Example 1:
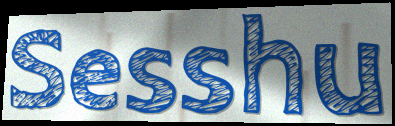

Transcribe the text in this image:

Sesshu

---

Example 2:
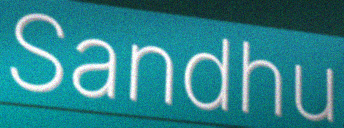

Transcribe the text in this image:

Sandhu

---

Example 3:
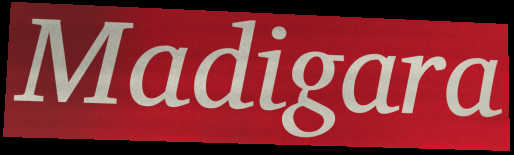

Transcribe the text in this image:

Madigara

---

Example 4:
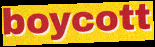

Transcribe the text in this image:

boycott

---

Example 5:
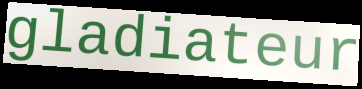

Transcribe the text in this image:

gladiateur